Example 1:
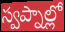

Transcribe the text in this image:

స్వప్నాల్లో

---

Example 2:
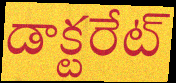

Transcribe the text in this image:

డాక్టరేట్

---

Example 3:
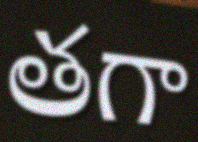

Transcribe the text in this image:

తగా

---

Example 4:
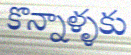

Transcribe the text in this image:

కొన్నాళ్ళకు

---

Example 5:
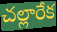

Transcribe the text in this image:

చల్లారేక